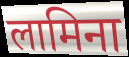
लामिना